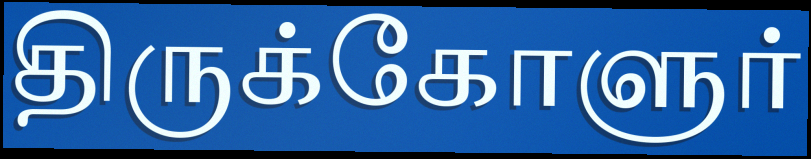
திருக்கோளுர்